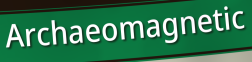
Archaeomagnetic